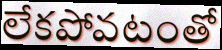
లేకపోవటంతో